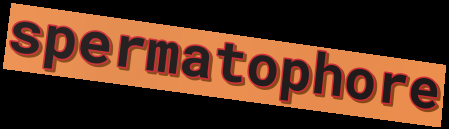
spermatophore